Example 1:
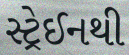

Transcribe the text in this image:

સ્ટ્રેઈનથી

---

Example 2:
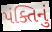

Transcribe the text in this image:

પંક્તિનું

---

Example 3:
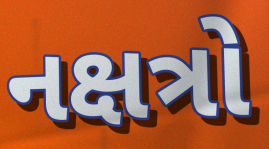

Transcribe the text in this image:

નક્ષત્રો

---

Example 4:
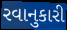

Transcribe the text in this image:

રવાનુકારી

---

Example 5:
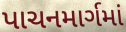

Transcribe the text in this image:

પાચનમાર્ગમાં